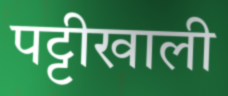
पट्टीखाली